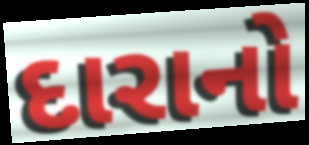
દારાનો